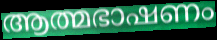
ആത്മഭാഷണം